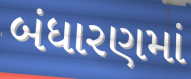
બંધારણમાં